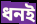
ধনই